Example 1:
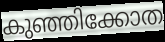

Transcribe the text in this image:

കുഞ്ഞിക്കോത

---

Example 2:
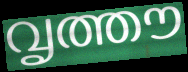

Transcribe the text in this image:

വൃത്തൗ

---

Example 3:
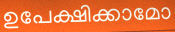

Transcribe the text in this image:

ഉപേക്ഷിക്കാമോ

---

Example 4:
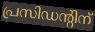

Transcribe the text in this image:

പ്രസിഡന്റിന്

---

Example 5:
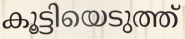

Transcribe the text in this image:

കൂട്ടിയെടുത്ത്